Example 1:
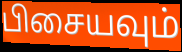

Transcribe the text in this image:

பிசையவும்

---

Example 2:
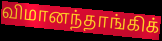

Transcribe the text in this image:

விமானந்தாங்கிக்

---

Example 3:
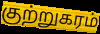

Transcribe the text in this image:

குற்றுகரம்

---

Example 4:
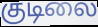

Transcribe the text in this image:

குடிலை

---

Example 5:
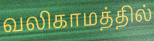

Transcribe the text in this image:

வலிகாமத்தில்